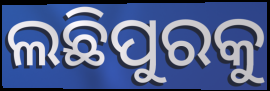
ଲଛିପୁରକୁ